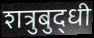
शत्रुबुद्धी